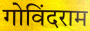
गोविंदराम